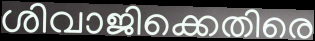
ശിവാജിക്കെതിരെ